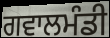
ਗਵਾਲਮੰਡੀ